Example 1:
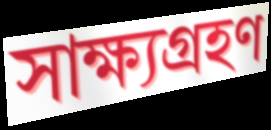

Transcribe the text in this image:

সাক্ষ্যগ্রহণ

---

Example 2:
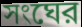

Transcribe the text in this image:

সংঘের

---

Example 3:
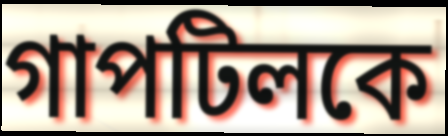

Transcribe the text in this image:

গাপটিলকে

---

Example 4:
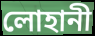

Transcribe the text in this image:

লোহানী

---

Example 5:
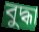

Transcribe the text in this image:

বুদ্ধা